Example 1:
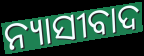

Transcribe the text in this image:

ନ୍ୟାସୀବାଦ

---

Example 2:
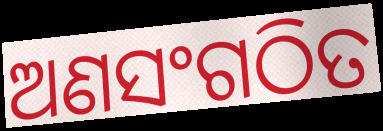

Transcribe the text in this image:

ଅଣସଂଗଠିତ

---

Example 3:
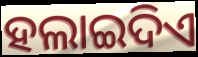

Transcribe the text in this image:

ହଲାଇଦିଏ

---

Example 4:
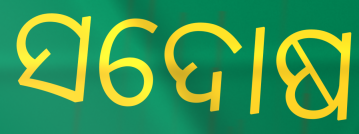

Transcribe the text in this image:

ସଦୋଷ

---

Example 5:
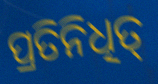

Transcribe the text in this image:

ପ୍ରତିନିଧିତ୍